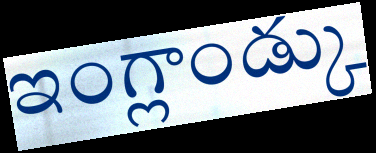
ఇంగ్లాండ్కు